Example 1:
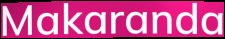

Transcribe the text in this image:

Makaranda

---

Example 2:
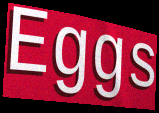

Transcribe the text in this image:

Eggs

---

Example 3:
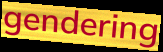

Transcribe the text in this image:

gendering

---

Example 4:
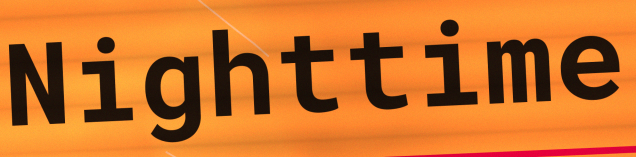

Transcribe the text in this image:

Nighttime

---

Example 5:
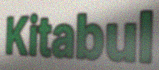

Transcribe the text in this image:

Kitabul